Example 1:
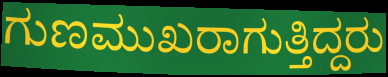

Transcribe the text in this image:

ಗುಣಮುಖರಾಗುತ್ತಿದ್ದರು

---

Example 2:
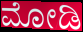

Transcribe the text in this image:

ಮೋಡಿ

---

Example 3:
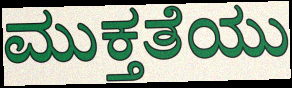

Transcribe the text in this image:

ಮುಕ್ತತೆಯು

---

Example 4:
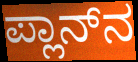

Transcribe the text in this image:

ಪ್ಲಾನ್‌ನ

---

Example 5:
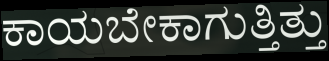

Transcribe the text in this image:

ಕಾಯಬೇಕಾಗುತ್ತಿತ್ತು